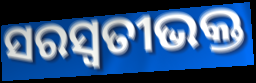
ସରସ୍ୱତୀଭକ୍ତ